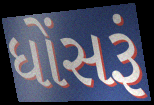
ધોંસરૂં